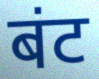
बंट